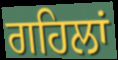
ਗਹਿਲਾਂ